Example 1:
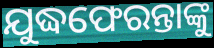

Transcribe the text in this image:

ଯୁଦ୍ଧଫେରନ୍ତାଙ୍କୁ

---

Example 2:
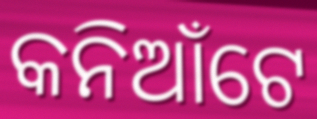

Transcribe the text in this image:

କନିଆଁଟେ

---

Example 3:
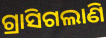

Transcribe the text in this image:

ଗ୍ରାସିଗଲାଣି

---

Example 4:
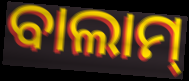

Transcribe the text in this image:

ବାଲାମ୍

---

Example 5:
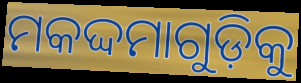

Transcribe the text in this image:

ମକଦ୍ଦମାଗୁଡ଼ିକୁ